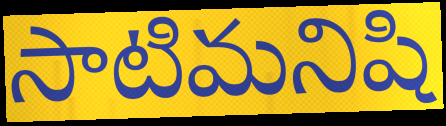
సాటిమనిషి